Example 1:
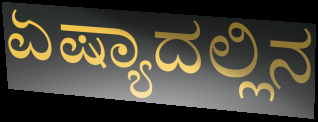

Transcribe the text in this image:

ಏಷ್ಯಾದಲ್ಲಿನ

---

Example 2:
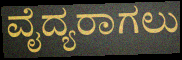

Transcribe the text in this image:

ವೈದ್ಯರಾಗಲು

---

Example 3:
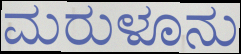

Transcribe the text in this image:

ಮರುಳೂನು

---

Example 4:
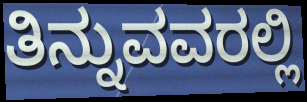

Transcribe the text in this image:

ತಿನ್ನುವವರಲ್ಲಿ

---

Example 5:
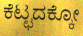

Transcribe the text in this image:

ಕೆಟ್ಟದಕ್ಕೋ